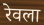
रेवला